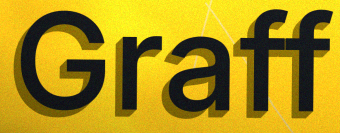
Graff